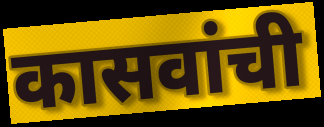
कासवांची